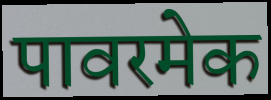
पावरमेक